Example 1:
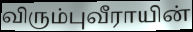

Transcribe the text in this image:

விரும்புவீராயின்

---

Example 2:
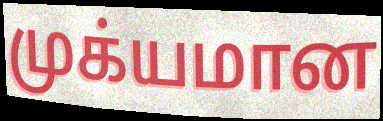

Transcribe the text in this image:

முக்யமான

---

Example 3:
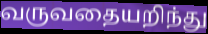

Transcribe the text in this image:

வருவதையறிந்து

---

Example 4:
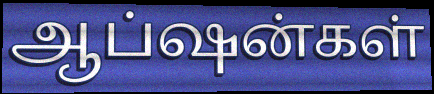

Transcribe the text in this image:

ஆப்ஷன்கள்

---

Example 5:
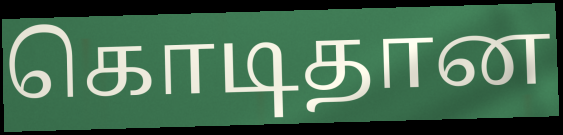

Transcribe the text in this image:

கொடிதான